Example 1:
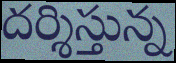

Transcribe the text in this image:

దర్శిస్తున్న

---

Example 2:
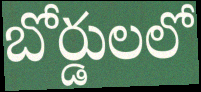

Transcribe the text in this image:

బోర్డులలో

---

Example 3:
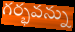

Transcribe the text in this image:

గర్భవన్ను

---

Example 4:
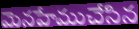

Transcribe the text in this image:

మెనహేముచేసిన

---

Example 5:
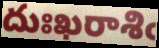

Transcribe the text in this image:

దుఃఖరాశిఁ